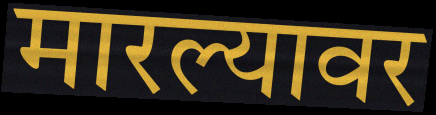
मारल्यावर